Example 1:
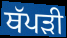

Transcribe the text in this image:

ਥੱਪੜੀ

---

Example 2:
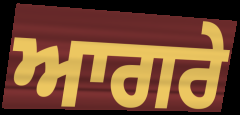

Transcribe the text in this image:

ਆਗਰੇ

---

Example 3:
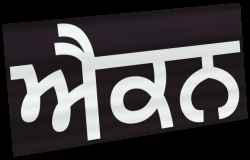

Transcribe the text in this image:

ਐਕਨ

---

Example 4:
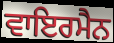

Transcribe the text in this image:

ਵਾਇਰਮੈਨ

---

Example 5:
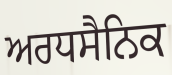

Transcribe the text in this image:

ਅਰਧਸੈਨਿਕ